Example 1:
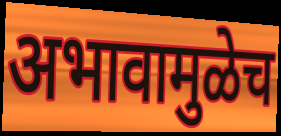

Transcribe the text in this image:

अभावामुळेच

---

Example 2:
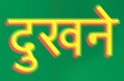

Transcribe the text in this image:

दुखने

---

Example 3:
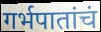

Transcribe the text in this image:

गर्भपातांचं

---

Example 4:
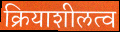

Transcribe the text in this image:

क्रियाशीलत्व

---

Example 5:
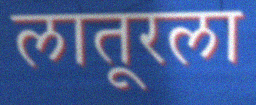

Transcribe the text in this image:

लातूरला